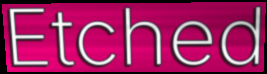
Etched